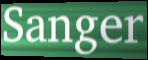
Sanger